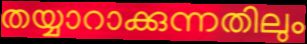
തയ്യാറാക്കുന്നതിലും